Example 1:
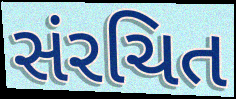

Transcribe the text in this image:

સંરચિત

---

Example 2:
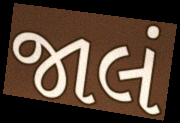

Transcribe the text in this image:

જાલં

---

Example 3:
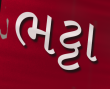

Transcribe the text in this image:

ભટ્ટા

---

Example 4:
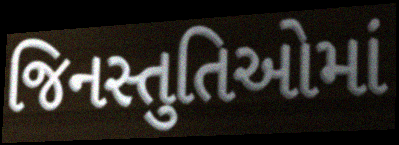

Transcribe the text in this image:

જિનસ્તુતિઓમાં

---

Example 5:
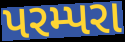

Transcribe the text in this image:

પરમ્પરા